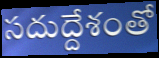
సదుద్దేశంతో